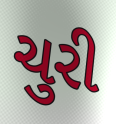
ચુરી